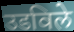
उडविले